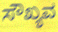
ಸೌಖ್ಯವ